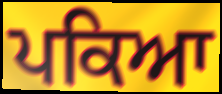
ਪਕਿਆ